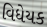
વિધેયક